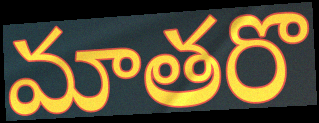
మాతరొ